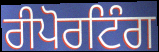
ਰੀਪੋਰਟਿੰਗ